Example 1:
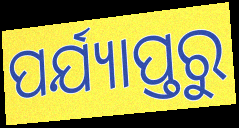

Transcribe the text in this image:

ପର୍ଯ୍ୟାପ୍ତରୁ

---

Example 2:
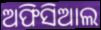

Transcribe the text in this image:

ଅଫିସିଆଲ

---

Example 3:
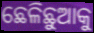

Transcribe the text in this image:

ଛେଳିଛୁଆକୁ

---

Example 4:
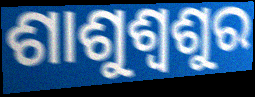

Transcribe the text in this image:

ଶାଶୁଶ୍ୱଶୁର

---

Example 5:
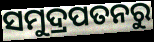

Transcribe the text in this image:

ସମୁଦ୍ରପତନରୁ